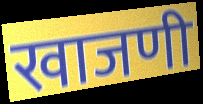
खाजणी